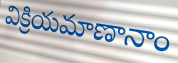
విక్రియమాణానాం